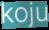
koju